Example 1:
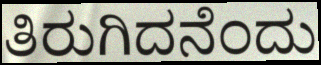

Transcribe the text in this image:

ತಿರುಗಿದನೆಂದು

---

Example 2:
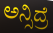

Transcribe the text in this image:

ಅನ್ಸಿದ್ರೆ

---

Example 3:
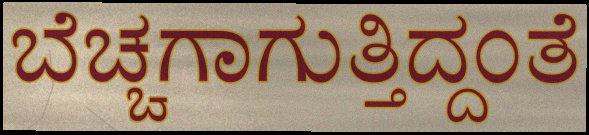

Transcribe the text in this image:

ಬೆಚ್ಚಗಾಗುತ್ತಿದ್ದಂತೆ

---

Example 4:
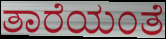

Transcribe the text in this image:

ತಾರೆಯಂತೆ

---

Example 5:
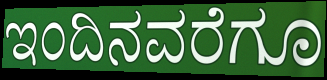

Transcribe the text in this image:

ಇಂದಿನವರೆಗೂ